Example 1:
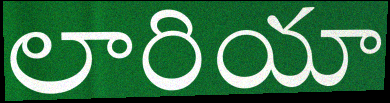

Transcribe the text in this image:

లారియా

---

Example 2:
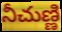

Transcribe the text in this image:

నీచుణ్ణి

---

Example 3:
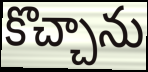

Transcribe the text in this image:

కొచ్చాను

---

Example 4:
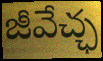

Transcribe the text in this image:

జీవేచ్ఛ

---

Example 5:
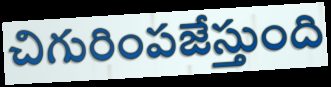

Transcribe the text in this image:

చిగురింపజేస్తుంది